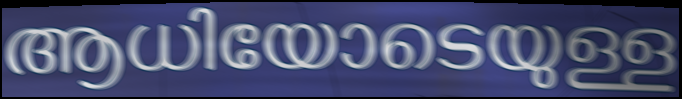
ആധിയോടെയുള്ള